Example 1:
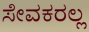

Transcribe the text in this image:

ಸೇವಕರಲ್ಲ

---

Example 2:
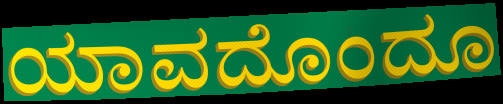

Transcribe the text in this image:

ಯಾವದೊಂದೂ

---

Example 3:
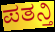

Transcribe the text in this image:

ಪತನ್ತಿ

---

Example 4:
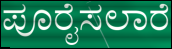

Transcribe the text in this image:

ಪೂರೈಸಲಾರೆ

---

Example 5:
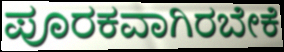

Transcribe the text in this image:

ಪೂರಕವಾಗಿರಬೇಕೆ